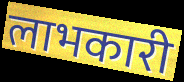
लाभकारी